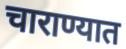
चाराण्यात